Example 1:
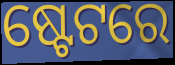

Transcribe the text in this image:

ଷ୍ଟେଟରେ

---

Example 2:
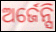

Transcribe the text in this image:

ଅର୍ଜେନ୍ସି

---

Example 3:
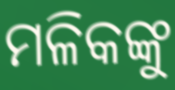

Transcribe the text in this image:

ମଳିକଙ୍କୁ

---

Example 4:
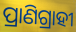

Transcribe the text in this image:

ପ୍ରାଣିଗ୍ରାହୀ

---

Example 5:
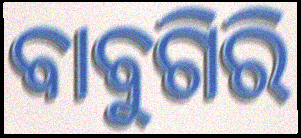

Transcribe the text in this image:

ବାବୁଗିରି